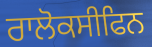
ਰਾਲੋਕਸੀਫਿਨ